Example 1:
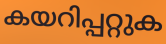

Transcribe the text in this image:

കയറിപ്പറ്റുക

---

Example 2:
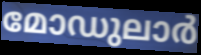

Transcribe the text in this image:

മോഡുലാർ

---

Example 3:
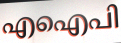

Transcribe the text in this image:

എഐപി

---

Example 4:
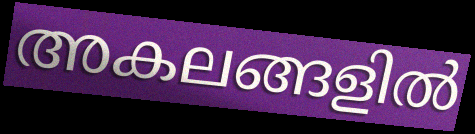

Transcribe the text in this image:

അകലങ്ങളിൽ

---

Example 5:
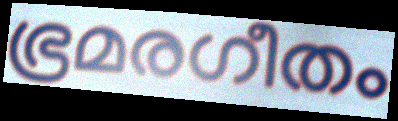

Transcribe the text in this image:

ഭ്രമരഗീതം